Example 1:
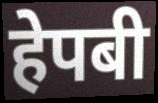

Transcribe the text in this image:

हेपबी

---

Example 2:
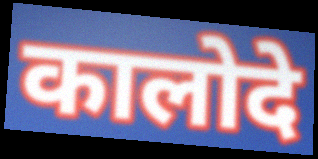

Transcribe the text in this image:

कालोदे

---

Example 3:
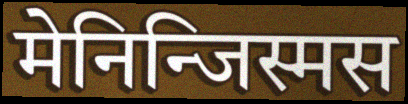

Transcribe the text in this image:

मेनिन्जिस्मस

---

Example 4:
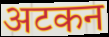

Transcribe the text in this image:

अटकन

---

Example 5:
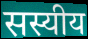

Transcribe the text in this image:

सस्यीय